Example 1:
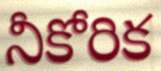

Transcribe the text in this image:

నీకోరిక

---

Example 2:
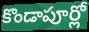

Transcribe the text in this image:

కొండాపూర్లో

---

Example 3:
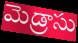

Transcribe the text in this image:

మెడ్రాసు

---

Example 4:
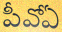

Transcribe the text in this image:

పీవోఏ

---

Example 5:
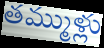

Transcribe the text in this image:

తమ్ముళ్లు